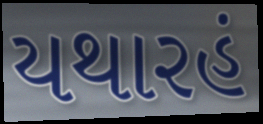
યથારહં